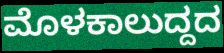
ಮೊಳಕಾಲುದ್ದದ